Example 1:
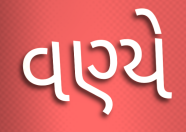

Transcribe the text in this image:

વણ્યે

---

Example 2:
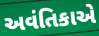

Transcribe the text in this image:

અવંતિકાએ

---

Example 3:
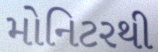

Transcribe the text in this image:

મોનિટરથી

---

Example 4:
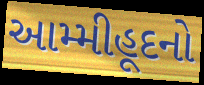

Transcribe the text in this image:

આમ્મીહૂદનો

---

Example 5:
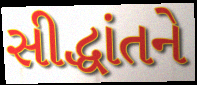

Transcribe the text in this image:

સીદ્ધાંતને